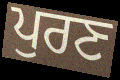
ਪੁਰਣ